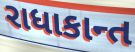
રાધાકાન્ત